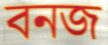
বনজ